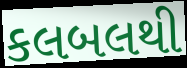
કલબલથી